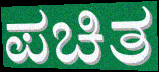
ಪಚಿತ